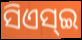
ସିଏସ୍ଇ